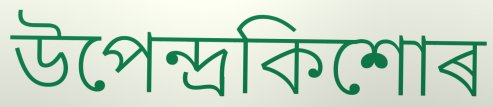
উপেন্দ্ৰকিশোৰ